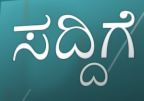
ಸದ್ದಿಗೆ